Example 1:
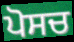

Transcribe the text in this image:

ਪੋਸਚ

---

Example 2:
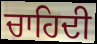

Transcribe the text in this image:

ਚਾਹਿਦੀ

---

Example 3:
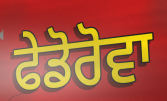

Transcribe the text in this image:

ਫੇਡੋਰੋਵਾ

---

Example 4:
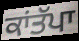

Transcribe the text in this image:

ਕਾਂਤੱਪਾ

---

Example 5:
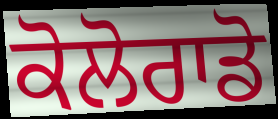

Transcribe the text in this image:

ਕੋਲੋਰਾਡੋ